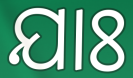
ଯାଃ